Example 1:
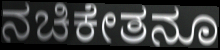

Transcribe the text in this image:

ನಚಿಕೇತನೂ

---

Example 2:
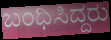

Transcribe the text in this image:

ಬಂಧಿಸಿದ್ದರು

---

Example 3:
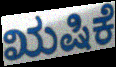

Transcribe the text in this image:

ಋಷಿಕೆ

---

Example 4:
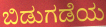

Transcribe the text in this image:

ಬಿಡುಗಡೆಯ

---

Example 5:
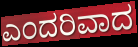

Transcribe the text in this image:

ಎಂದರಿವಾದ